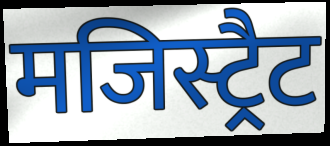
मजिस्ट्रैट